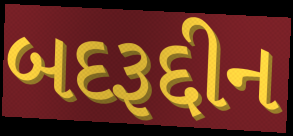
બદરૂદ્દીન